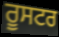
ਰੂਸਟਰ